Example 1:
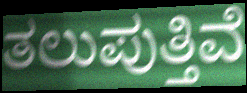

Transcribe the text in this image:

ತಲುಪುತ್ತಿವೆ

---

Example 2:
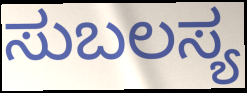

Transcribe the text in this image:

ಸುಬಲಸ್ಯ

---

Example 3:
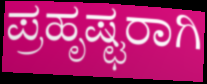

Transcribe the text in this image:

ಪ್ರಹೃಷ್ಟರಾಗಿ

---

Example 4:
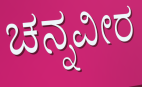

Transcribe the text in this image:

ಚನ್ನವೀರ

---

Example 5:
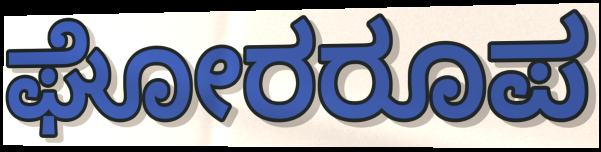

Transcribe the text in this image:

ಘೋರರೂಪ